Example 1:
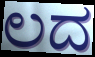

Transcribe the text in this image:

ಲದ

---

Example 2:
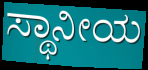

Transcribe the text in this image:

ಸ್ಥಾನೀಯ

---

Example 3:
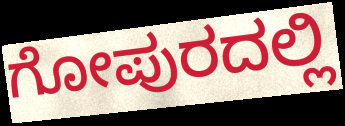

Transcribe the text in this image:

ಗೋಪುರದಲ್ಲಿ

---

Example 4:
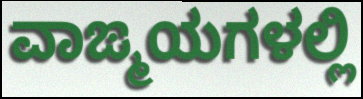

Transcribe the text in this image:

ವಾಙ್ಮಯಗಳಲ್ಲಿ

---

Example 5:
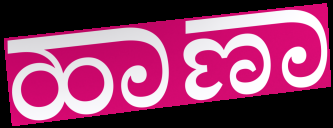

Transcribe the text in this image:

ಹಾಣಾ